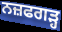
ਨਜ਼ਫਗੜ੍ਹ